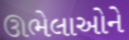
ઊભેલાઓને